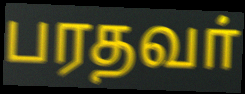
பரதவர்